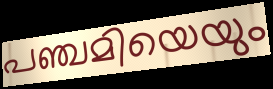
പഞ്ചമിയെയും